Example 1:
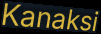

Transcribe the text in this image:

Kanaksi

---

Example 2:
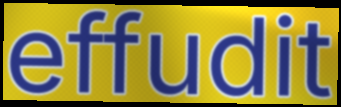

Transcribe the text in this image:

effudit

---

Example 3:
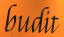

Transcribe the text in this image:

budit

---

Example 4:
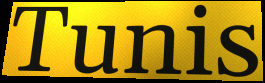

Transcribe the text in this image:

Tunis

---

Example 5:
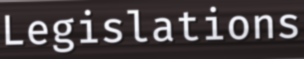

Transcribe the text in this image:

Legislations